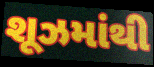
શૂઝમાંથી